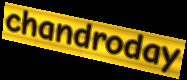
chandroday